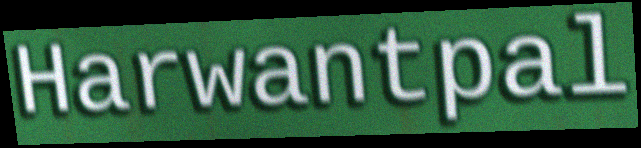
Harwantpal